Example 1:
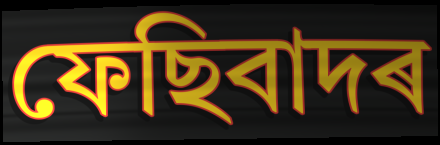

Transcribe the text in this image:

ফেছিবাদৰ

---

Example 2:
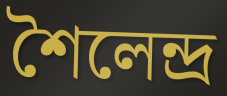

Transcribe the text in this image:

শৈলেন্দ্ৰ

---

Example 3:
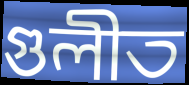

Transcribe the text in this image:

গুলীত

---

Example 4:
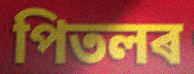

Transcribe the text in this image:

পিতলৰ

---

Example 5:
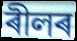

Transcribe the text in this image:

ৰীলৰ